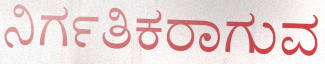
ನಿರ್ಗತಿಕರಾಗುವ